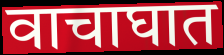
वाचाघात